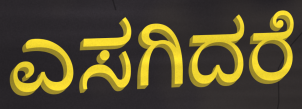
ಎಸಗಿದರೆ